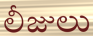
లీజులు